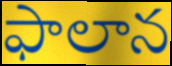
ఫాలాన